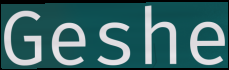
Geshe